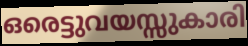
ഒരെട്ടുവയസ്സുകാരി